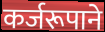
कर्जरूपाने